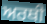
ਅਰਥੀ